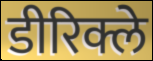
डीरिक्ले